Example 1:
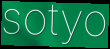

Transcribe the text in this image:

sotyo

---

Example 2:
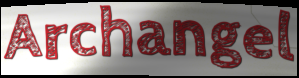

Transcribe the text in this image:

Archangel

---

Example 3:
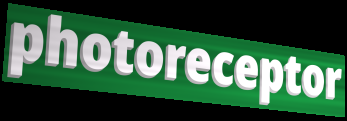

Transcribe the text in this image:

photoreceptor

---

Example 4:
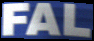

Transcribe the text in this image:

FAL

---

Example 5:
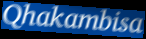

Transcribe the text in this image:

Qhakambisa